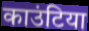
काउंटिया